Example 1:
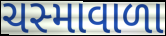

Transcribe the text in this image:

ચસ્માવાળા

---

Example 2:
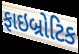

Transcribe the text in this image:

ફાઇબ્રોટિક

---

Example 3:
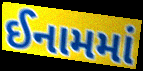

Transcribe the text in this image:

ઈનામમાં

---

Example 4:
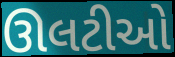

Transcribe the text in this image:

ઊલટીઓ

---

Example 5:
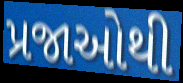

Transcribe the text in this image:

પ્રજાઓથી